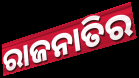
ରାଜନାତିର